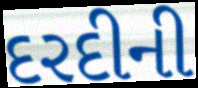
દરદીની